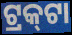
ଟ୍ରକ୍‌ଟା